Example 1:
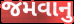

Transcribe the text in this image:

જમવાનુ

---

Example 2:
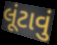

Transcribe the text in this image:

લૂંટાવું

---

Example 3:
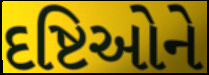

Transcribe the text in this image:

દષ્ટિઓને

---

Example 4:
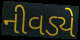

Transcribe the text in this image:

નીવડ્યે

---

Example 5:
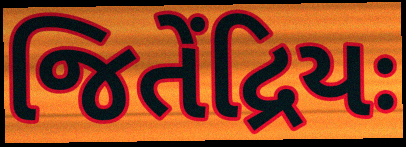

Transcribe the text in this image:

જિતેંદ્રિયઃ